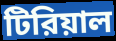
টিরিয়াল